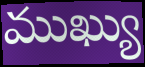
ముఖ్యు